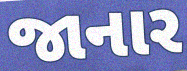
જાનાર